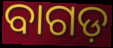
ବାଗଡ଼